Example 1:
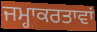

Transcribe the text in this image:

ਜਮ੍ਹਾਕਰਤਾਵਾਂ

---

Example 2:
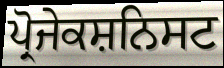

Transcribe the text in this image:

ਪ੍ਰੋਜੇਕਸ਼ਨਿਸਟ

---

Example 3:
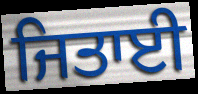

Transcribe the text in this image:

ਜਿਤਾਈ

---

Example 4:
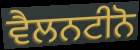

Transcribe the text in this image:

ਵੈਲਨਟੀਨੋ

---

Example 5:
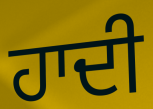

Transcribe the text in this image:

ਹਾਦੀ